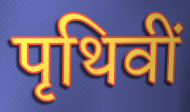
पृथिवीं